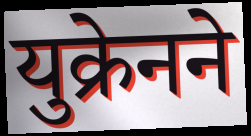
युक्रेनने